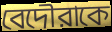
বেদৌরাকে